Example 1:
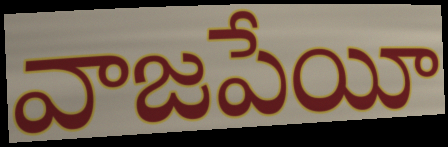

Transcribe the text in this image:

వాజపేయీ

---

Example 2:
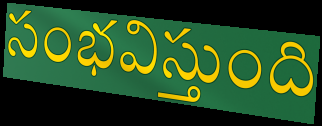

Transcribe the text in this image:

సంభవిస్తుంది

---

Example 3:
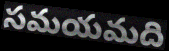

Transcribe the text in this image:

సమయమది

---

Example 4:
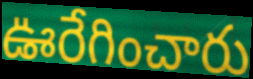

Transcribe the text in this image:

ఊరేగించారు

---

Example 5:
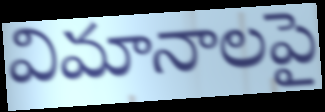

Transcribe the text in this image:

విమానాలపై